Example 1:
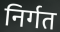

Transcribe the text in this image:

निर्गत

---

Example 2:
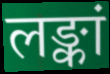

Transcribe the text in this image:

लङ्कां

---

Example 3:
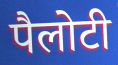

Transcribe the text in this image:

पैलोटी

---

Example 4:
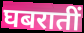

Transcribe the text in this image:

घबरातीं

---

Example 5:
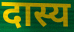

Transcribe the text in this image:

दास्य